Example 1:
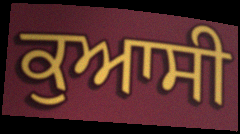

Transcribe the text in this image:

ਕੁਆਸੀ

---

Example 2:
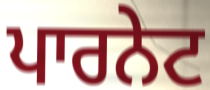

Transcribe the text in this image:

ਪਾਰਨੇਟ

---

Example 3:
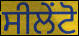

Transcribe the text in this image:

ਸੀਲੇਂਟੋ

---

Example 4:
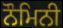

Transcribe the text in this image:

ਨੌਮਿਨੀ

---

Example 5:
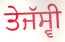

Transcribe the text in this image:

ਤੇਜੱਸ੍ਵੀ